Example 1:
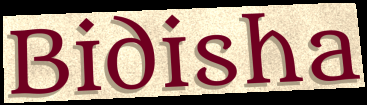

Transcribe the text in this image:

Bidisha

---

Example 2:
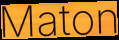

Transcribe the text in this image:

Maton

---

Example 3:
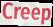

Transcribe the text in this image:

Creep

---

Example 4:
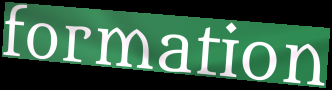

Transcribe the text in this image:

formation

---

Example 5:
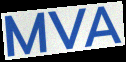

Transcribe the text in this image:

MVA